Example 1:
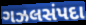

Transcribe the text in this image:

ગઝલસંપદા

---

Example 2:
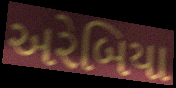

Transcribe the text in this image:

અરેબિયા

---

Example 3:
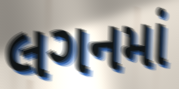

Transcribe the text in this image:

લગનમાં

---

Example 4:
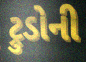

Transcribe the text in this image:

ટ્રુડોની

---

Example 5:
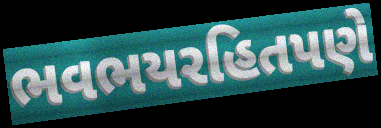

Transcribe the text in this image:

ભવભયરહિતપણે